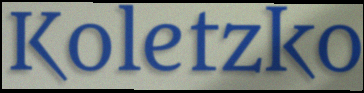
Koletzko